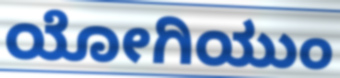
ಯೋಗಿಯುಂ